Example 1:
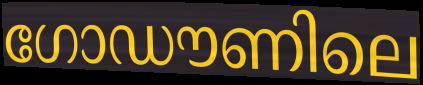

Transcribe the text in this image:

ഗോഡൗണിലെ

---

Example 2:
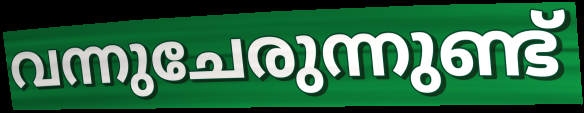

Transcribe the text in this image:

വന്നുചേരുന്നുണ്ട്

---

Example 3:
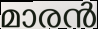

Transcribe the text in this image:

മാരൻ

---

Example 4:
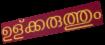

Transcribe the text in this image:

ഉള്ക്കരുത്തും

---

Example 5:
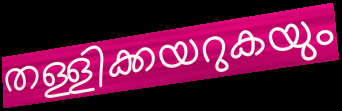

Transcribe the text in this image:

തള്ളിക്കയറുകയും